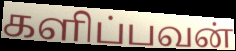
களிப்பவன்